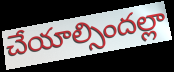
చేయాల్సిందల్లా